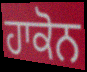
ਹਾਕੋਨ